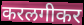
करलगीकर